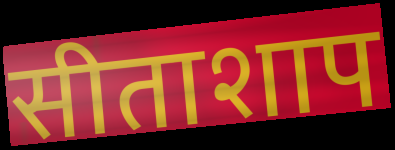
सीताशाप